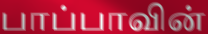
பாப்பாவின்